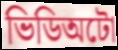
ভিডিঅটো